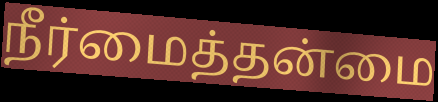
நீர்மைத்தன்மை